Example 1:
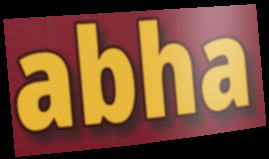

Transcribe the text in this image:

abha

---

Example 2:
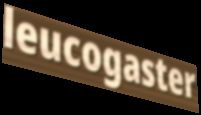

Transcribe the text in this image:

leucogaster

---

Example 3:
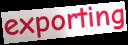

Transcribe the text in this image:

exporting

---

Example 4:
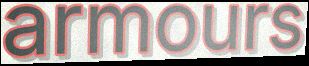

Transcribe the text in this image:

armours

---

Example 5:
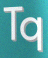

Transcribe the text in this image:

Tq